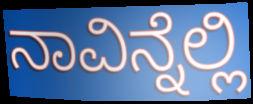
ನಾವಿನ್ನೆಲ್ಲಿ